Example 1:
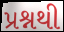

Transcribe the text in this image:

પ્રશ્નથી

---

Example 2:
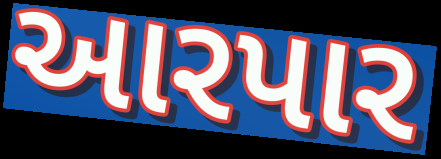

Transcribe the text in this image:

આરપાર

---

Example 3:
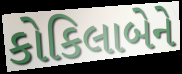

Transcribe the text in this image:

કોકિલાબેને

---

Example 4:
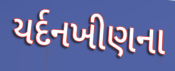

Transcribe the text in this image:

યર્દનખીણના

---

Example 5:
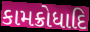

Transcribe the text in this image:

કામક્રોધાદિ